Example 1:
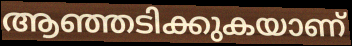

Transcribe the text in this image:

ആഞ്ഞടിക്കുകയാണ്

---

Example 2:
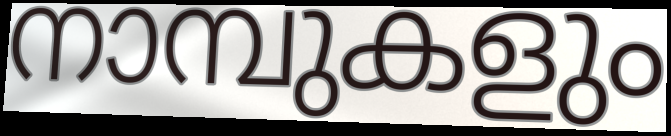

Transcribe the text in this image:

നാമ്പുകളും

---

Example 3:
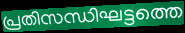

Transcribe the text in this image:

പ്രതിസന്ധിഘട്ടത്തെ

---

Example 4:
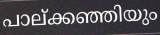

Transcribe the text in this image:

പാല്ക്കഞ്ഞിയും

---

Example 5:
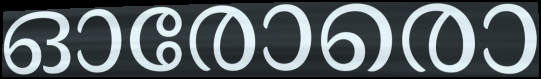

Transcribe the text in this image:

ഓരോരൊ